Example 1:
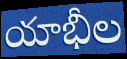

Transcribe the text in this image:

యాభీల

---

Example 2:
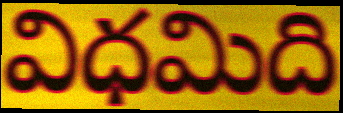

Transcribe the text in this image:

విధమిది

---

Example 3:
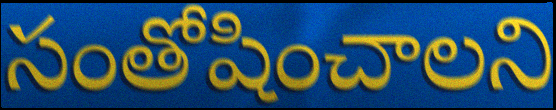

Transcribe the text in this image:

సంతోషించాలని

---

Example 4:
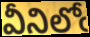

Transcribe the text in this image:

వీనిలోఁ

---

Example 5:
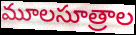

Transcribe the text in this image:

మూలసూత్రాల